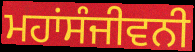
ਮਹਾਂਸੰਜੀਵਨੀ